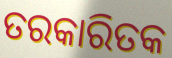
ତରକାରିତକ